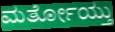
ಮರ್ತೋಯ್ತು